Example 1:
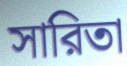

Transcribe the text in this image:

সারিতা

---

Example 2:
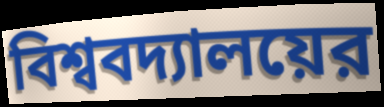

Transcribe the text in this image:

বিশ্ববদ্যালয়ের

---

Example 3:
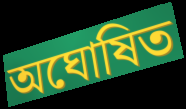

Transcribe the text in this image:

অঘোষিত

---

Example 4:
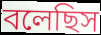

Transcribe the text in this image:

বলেছিস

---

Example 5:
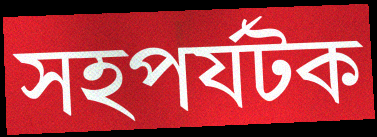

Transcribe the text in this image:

সহপর্যটক